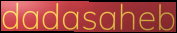
dadasaheb